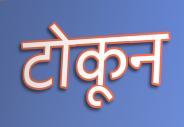
टोकून